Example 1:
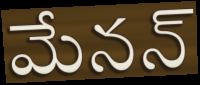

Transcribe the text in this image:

మేనన్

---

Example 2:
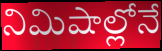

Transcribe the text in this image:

నిమిషాల్లోనే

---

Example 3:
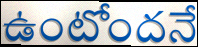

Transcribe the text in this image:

ఉంటోందనే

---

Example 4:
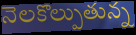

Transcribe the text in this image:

నెలకొల్పుతున్న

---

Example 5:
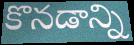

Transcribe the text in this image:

కొనడాన్ని